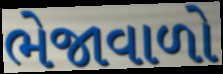
ભેજાવાળો